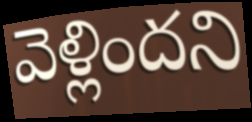
వెళ్లిందని